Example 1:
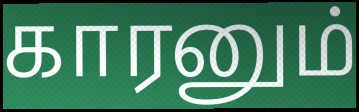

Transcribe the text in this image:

காரனும்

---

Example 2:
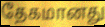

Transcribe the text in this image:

தேகமானது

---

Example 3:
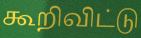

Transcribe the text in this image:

கூறிவிட்டு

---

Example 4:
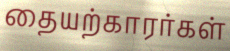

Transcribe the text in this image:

தையற்காரர்கள்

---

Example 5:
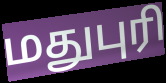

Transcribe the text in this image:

மதுபுரி